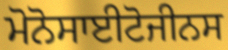
ਮੋਨੋਸਾਈਟੋਜੀਨਸ